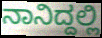
ನಾನಿದ್ದಲ್ಲಿ